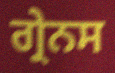
ਗ੍ਰੇਨਸ